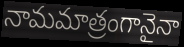
నామమాత్రంగానైనా